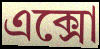
এক্সো